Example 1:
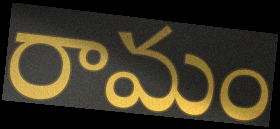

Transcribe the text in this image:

రామం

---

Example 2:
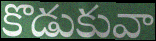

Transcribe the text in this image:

కొడుకువా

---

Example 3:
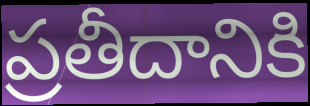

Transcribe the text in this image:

ప్రతీదానికి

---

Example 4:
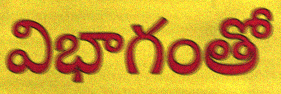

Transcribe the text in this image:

విభాగంతో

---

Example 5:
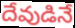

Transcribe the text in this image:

దేవుడినే